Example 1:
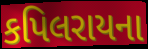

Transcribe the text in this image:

કપિલરાયના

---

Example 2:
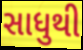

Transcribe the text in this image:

સાધુથી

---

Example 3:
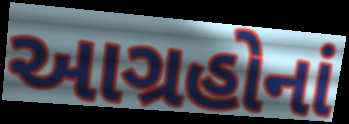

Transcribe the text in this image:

આગ્રહોનાં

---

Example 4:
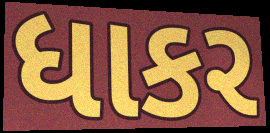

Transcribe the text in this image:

ધાકર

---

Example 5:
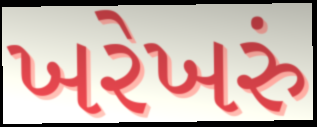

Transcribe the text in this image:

ખરેખરું